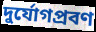
দুর্যোগপ্রবণ